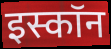
इस्कॉन